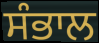
ਸੰਭਾਲ